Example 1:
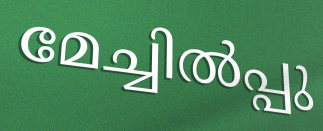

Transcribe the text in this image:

മേച്ചിൽപ്പു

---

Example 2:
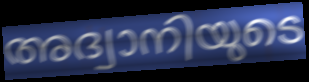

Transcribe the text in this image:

അദ്വാനിയുടെ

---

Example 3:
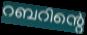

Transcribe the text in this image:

റബറിന്റെ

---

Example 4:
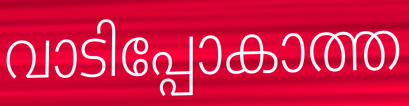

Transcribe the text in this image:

വാടിപ്പോകാത്ത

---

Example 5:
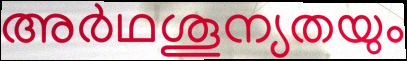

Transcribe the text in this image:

അർഥശൂന്യതയും